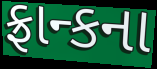
ફ્રાન્કના